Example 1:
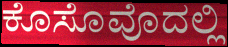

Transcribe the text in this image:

ಕೊಸೊವೊದಲ್ಲಿ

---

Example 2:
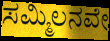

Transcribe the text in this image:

ಸಮ್ಮಿಲನವೇ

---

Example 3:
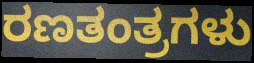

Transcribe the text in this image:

ರಣತಂತ್ರಗಳು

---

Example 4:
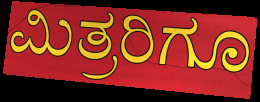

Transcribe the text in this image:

ಮಿತ್ರರಿಗೂ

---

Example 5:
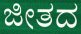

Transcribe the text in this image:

ಜೀತದ